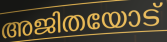
അജിതയോട്